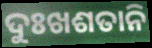
ଦୁଃଖଶତାନି